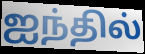
ஐந்தில்